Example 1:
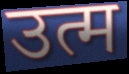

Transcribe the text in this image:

उत्म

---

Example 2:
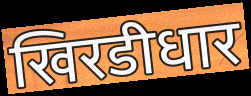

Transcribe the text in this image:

खिरडीधार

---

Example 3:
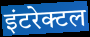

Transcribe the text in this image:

इंटरेक्टल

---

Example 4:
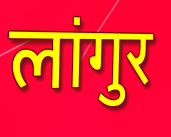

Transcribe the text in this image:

लांगुर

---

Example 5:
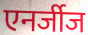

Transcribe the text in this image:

एनर्जीज